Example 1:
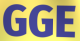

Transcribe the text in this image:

GGE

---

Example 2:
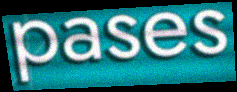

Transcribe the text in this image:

pases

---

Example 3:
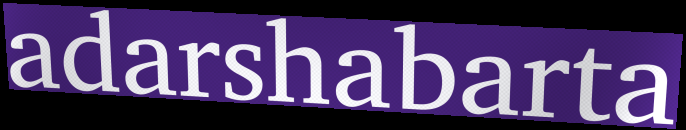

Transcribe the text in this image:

adarshabarta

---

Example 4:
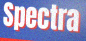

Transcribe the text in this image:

Spectra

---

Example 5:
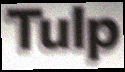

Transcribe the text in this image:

Tulp